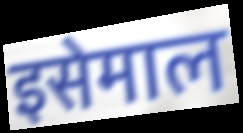
इसेमाल